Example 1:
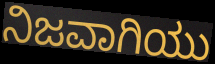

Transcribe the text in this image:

ನಿಜವಾಗಿಯು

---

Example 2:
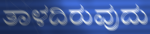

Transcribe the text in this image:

ತಾಳದಿರುವುದು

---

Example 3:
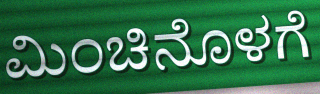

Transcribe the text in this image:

ಮಿಂಚಿನೊಳಗೆ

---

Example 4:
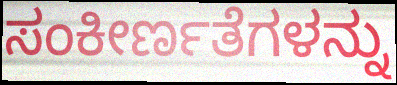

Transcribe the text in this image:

ಸಂಕೀರ್ಣತೆಗಳನ್ನು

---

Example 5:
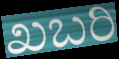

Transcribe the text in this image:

ಖಬರಿ